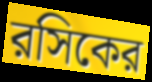
রসিকের